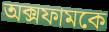
অক্সফামকে